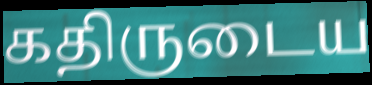
கதிருடைய